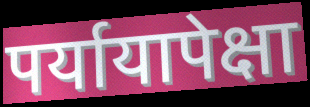
पर्यायापेक्षा